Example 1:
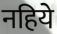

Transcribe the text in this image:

नहिये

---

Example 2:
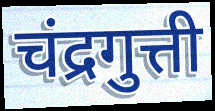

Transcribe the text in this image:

चंद्रगुत्ती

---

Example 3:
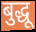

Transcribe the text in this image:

बुद्धू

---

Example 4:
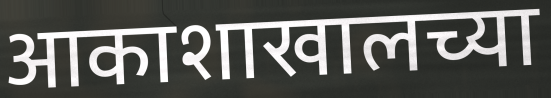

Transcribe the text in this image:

आकाशाखालच्या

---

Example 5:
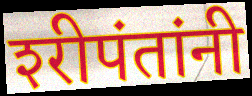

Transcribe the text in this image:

श्रीपंतांनी